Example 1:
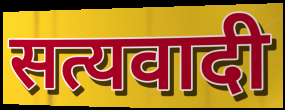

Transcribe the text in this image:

सत्यवादी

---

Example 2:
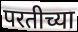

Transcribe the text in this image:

परतीच्या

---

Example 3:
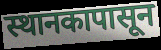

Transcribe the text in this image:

स्थानकापासून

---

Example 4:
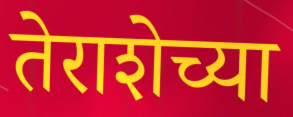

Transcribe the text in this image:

तेराशेच्या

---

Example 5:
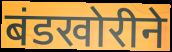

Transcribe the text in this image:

बंडखोरीने